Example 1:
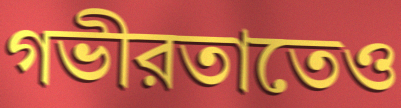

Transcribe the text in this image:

গভীরতাতেও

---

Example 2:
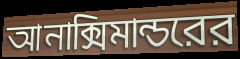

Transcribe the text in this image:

আনাক্সিমান্ডরের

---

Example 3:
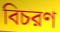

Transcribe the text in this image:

বিচরণ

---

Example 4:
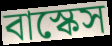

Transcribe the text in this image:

বাস্কেস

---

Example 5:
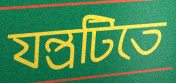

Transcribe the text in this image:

যন্ত্রটিতে